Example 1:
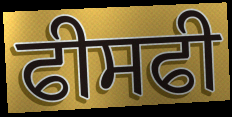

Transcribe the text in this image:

ਫੀਸਫੀ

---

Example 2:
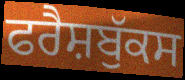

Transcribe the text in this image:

ਫਰੈਸ਼ਬੁੱਕਸ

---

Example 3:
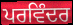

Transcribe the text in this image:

ਪਰਵਿੰਦਰ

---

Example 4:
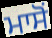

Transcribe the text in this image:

ਮਾਸੋਂ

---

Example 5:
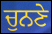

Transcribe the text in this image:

ਚੁਨਣੇ